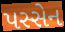
પસ્સેન